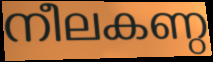
നീലകണ്ഠ